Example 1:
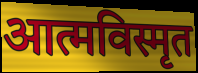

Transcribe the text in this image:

आत्मविस्मृत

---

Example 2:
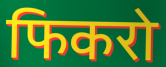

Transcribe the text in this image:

फिकरो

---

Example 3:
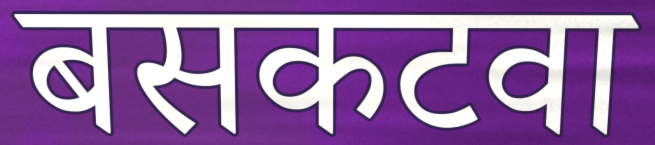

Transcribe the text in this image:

बसकटवा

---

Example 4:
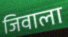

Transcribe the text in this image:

जिवाला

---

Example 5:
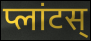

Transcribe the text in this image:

प्लांटस्